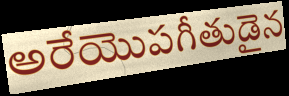
అరేయొపగీతుడైన